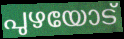
പുഴയോട്